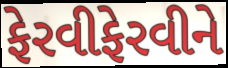
ફેરવીફેરવીને